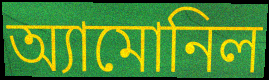
অ্যামোনিল